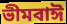
ভীমবাঈ